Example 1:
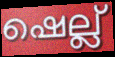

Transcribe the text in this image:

ഷെല്ല്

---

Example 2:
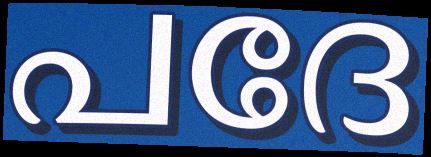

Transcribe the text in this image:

പദേ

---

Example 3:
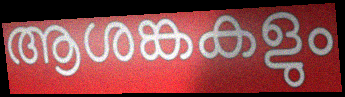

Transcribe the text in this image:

ആശങ്കകളും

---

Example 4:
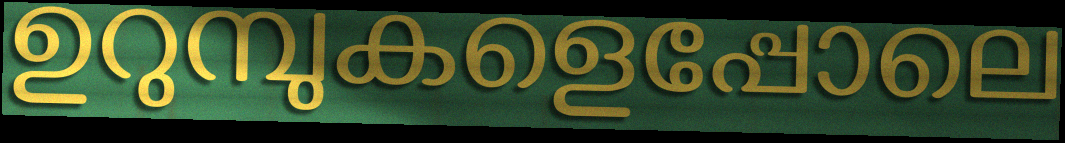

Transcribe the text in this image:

ഉറുമ്പുകളെപ്പോലെ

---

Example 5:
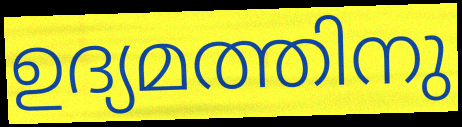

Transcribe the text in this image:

ഉദ്യമത്തിനു